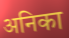
अनिका